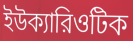
ইউক্যারিওটিক